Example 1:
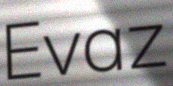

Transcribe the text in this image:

Evaz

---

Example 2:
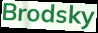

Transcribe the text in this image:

Brodsky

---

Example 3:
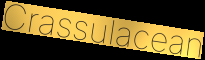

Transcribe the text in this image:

Crassulacean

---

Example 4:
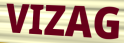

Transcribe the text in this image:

VIZAG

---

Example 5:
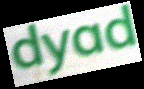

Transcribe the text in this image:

dyad